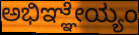
ಅಭಿಞ್ಞೇಯ್ಯಂ